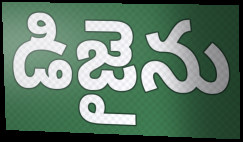
డిజైను